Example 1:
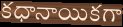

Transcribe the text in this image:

కధానాయికగా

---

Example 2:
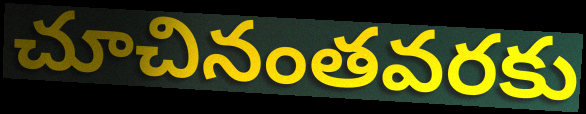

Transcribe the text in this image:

చూచినంతవరకు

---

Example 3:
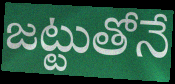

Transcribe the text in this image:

జట్టుతోనే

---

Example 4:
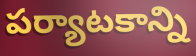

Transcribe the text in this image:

పర్యాటకాన్ని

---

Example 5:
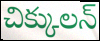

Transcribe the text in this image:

చిక్కులన్